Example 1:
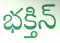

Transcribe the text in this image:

భక్తిన్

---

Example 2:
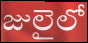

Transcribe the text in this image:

జులైలో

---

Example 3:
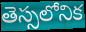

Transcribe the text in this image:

తెస్సలోనిక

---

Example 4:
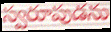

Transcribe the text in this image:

స్వరూపుడను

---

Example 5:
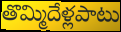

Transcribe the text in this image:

తొమ్మిదేళ్లపాటు